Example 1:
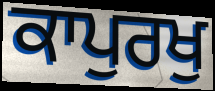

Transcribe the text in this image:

ਕਾਪੁਰਖੁ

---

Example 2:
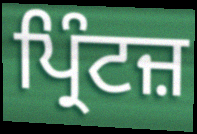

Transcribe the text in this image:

ਪ੍ਰਿੰਟਜ਼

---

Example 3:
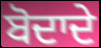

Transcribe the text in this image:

ਬੋਦਾਦੇ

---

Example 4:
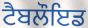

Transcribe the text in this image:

ਟੈਬਲੌਇਡ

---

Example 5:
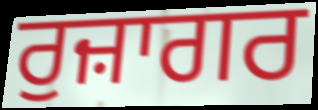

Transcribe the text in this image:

ਰੁਜ਼ਾਗਰ